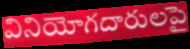
వినియోగదారులపై